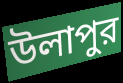
উলাপুর